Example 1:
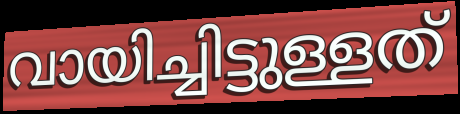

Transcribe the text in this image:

വായിച്ചിട്ടുള്ളത്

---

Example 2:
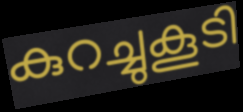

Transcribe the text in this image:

കുറച്ചുകൂടി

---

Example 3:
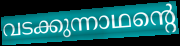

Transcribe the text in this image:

വടക്കുന്നാഥന്റെ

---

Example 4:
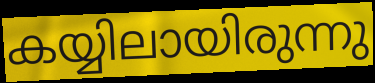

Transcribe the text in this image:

കയ്യിലായിരുന്നു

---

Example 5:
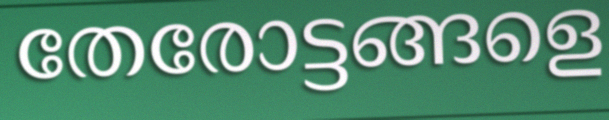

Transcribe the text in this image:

തേരോട്ടങ്ങളെ